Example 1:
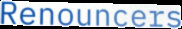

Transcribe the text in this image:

Renouncers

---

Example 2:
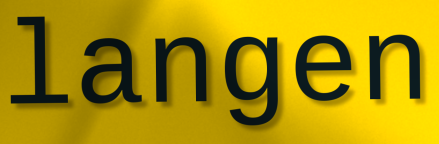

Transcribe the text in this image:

langen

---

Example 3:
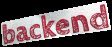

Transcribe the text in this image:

backend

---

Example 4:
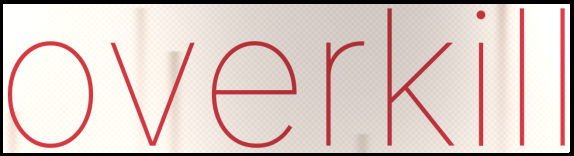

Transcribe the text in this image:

overkill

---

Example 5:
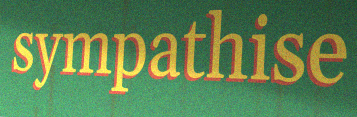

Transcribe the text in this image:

sympathise